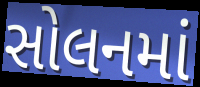
સોલનમાં